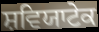
ਸ਼ਵਿਯਾਟੇਕ